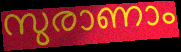
സുരാണാം